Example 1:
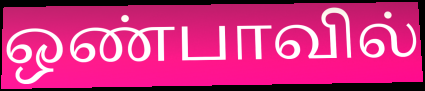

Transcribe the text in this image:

ஒண்பாவில்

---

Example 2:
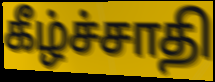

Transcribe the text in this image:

கீழ்ச்சாதி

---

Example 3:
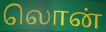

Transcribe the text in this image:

லொன்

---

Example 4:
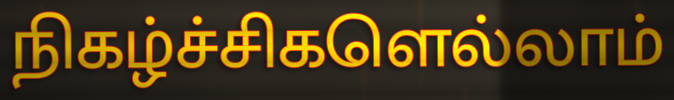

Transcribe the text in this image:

நிகழ்ச்சிகளெல்லாம்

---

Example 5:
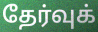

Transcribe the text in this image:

தேர்வுக்